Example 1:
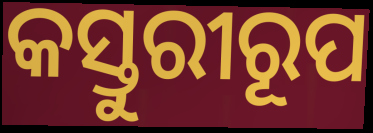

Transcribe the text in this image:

କସ୍ତୁରୀରୂପ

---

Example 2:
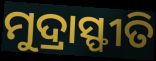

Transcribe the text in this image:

ମୁଦ୍ରାସ୍ଫୀତି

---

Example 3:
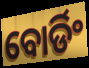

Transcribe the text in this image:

ବୋର୍ଡିଂ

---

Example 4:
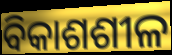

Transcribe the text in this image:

ବିକାଶଶୀଳ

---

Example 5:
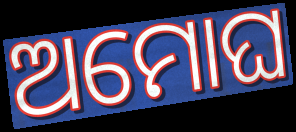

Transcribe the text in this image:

ଅମୋଘ